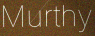
Murthy